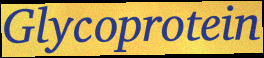
Glycoprotein